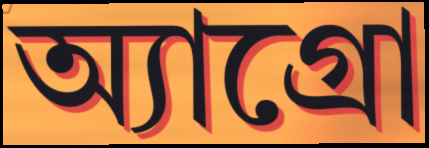
অ্যাগ্রো